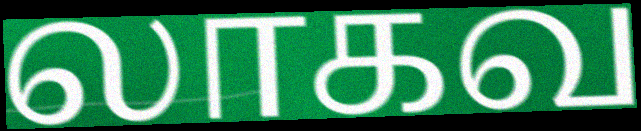
லாகவ